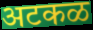
अटकळ